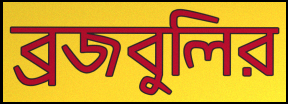
ব্রজবুলির